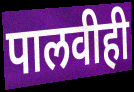
पालवीही